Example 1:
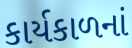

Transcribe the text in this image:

કાર્યકાળનાં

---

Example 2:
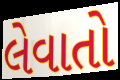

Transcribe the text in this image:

લેવાતો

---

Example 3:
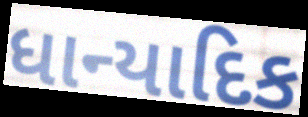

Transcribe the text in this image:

ધાન્યાદિક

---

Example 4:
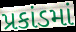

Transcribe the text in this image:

પ્રકાંડમાં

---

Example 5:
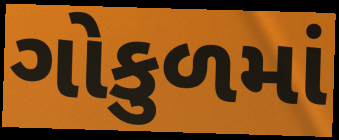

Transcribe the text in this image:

ગોકુળમાં